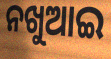
ନଖୁଆଇ